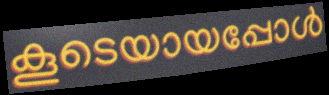
കൂടെയായപ്പോൾ